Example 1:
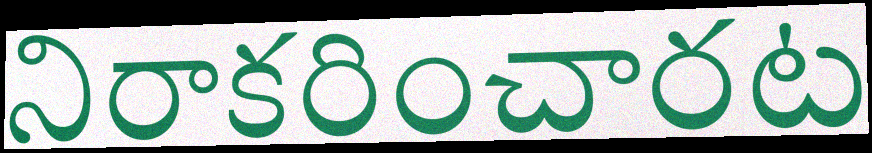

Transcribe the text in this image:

నిరాకరించారట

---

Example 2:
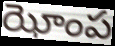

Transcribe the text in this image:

ఝోంప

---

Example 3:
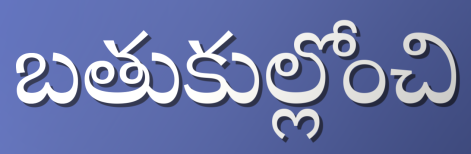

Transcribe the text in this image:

బతుకుల్లోంచి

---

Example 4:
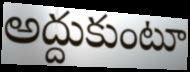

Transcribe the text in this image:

అద్దుకుంటూ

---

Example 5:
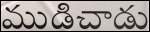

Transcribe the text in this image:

ముడిచాడు